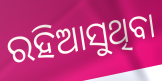
ରହିଆସୁଥିବା